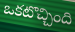
ఒకటొచ్చింది